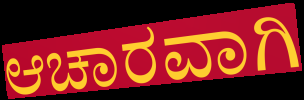
ಆಚಾರವಾಗಿ